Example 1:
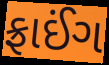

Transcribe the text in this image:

ફ્રાઈંગ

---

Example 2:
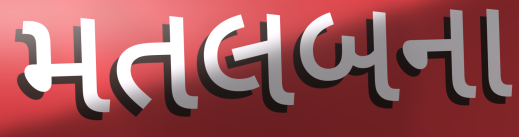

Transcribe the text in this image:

મતલબના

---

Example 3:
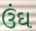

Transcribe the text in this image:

ઉંઘ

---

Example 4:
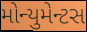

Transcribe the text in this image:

મોન્યુમેન્ટસ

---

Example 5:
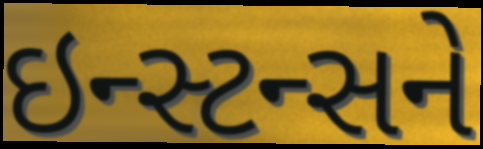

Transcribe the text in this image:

ઇન્સ્ટન્સને